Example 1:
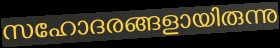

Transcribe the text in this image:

സഹോദരങ്ങളായിരുന്നു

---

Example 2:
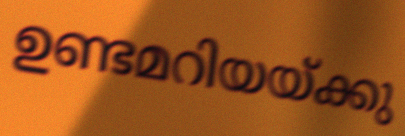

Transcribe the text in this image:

ഉണ്ടമറിയയ്ക്കു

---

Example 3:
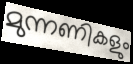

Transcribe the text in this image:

മുന്നണികളും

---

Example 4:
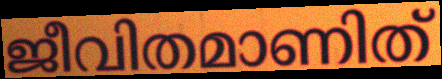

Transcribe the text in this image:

ജീവിതമാണിത്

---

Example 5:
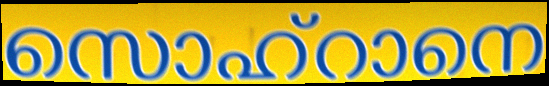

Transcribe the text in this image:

സൊഹ്റാനെ